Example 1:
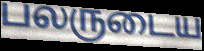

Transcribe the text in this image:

பலருடைய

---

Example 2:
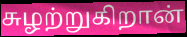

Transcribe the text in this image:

சுழற்றுகிறான்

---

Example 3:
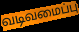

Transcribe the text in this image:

வடிவமைப்பு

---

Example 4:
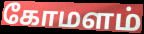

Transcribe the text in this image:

கோமளம்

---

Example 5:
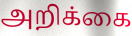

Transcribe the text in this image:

அறிக்கை